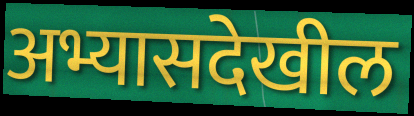
अभ्यासदेखील